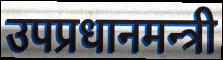
उपप्रधानमन्त्री